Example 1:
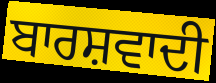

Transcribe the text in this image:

ਬਾਰਸ਼ਵਾਦੀ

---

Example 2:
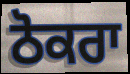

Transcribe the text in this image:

ਠੋਕਰਾ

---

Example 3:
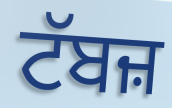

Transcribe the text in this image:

ਟੱਬਜ਼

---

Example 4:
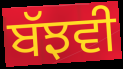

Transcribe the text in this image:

ਬੱਝਵੀ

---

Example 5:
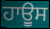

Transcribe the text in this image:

ਹਾਊੁਸ